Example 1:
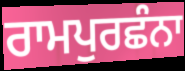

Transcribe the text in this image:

ਰਾਮਪੁਰਛੰਨਾ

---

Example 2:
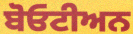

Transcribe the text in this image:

ਬੋਓਟੀਅਨ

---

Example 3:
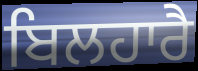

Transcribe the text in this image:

ਬਿਲਹਾਰੈ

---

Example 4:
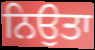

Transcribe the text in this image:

ਨਿਉਤਾ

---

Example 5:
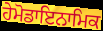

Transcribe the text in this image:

ਹੇਮੋਡਾਇਨਾਮਿਕ